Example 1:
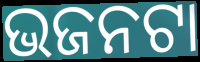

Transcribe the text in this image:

ଭଜନଟା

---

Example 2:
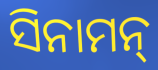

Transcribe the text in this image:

ସିନାମନ୍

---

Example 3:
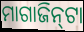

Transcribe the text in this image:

ମାଗାଜିନ୍‌ଟା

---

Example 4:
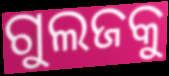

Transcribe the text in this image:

ଗୁଲଜକୁ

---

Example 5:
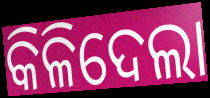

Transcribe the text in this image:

କିଳିଦେଲା